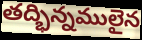
తద్భిన్నములైన